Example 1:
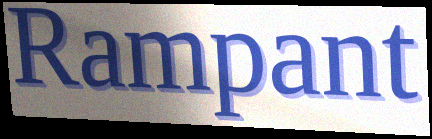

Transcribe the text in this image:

Rampant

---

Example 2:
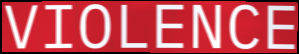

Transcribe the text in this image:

VIOLENCE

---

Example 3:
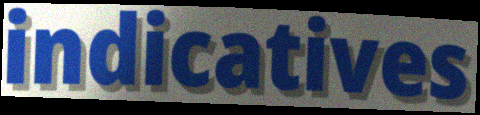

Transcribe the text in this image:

indicatives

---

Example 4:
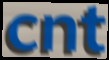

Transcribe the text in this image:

cnt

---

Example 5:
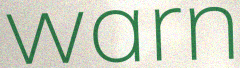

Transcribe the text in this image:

warn